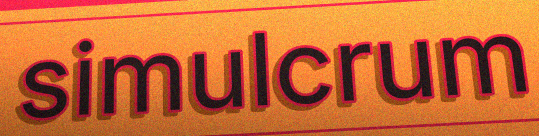
simulcrum